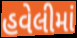
હવેલીમાં